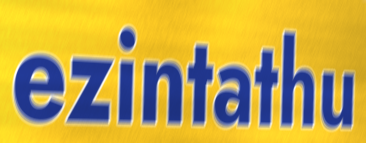
ezintathu